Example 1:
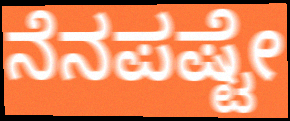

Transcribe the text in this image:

ನೆನಪಷ್ಟೇ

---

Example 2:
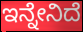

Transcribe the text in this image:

ಇನ್ನೇನಿದೆ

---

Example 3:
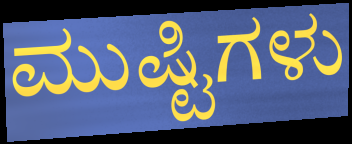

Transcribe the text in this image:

ಮುಷ್ಟಿಗಳು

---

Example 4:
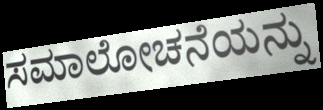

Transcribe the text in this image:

ಸಮಾಲೋಚನೆಯನ್ನು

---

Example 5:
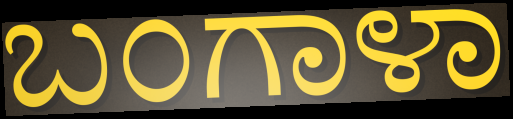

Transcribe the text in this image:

ಬಂಗಾಳಾ